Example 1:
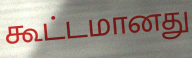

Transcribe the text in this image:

கூட்டமானது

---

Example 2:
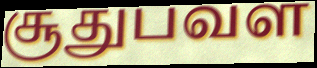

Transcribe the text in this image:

சூதுபவள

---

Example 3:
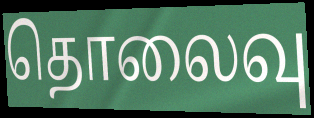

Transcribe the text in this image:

தொலைவு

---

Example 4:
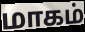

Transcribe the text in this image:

மாகம்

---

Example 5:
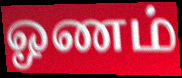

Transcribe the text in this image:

ஓணம்